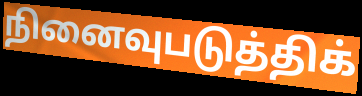
நினைவுபடுத்திக்